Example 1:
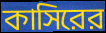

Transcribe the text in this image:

কাসিরের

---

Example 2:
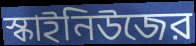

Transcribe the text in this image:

স্কাইনিউজের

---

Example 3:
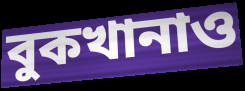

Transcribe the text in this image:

বুকখানাও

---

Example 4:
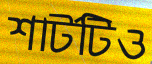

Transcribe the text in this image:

শার্টটিও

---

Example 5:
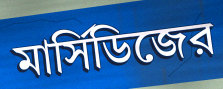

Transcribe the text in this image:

মার্সিডিজের